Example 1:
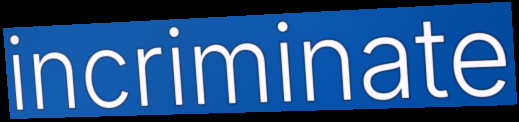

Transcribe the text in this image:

incriminate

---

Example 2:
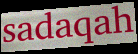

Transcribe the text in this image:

sadaqah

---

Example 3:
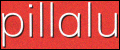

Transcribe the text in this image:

pillalu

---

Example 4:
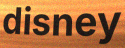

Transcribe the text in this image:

disney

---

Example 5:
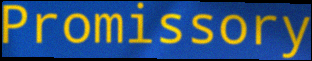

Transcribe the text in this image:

Promissory